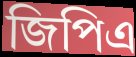
জিপিএ